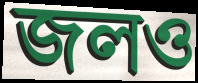
জলও